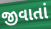
જીવાતાં